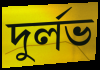
দুর্লভ